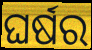
ଘର୍ଷର